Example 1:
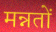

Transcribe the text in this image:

मन्नतों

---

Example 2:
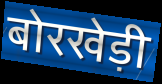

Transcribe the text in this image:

बोरखेड़ी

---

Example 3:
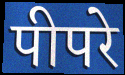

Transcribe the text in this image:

पीपरे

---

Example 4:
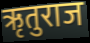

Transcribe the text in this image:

ऋृतुराज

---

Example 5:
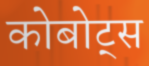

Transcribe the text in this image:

कोबोट्स